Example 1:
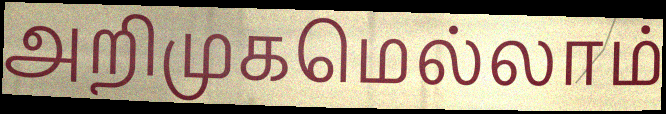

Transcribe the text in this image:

அறிமுகமெல்லாம்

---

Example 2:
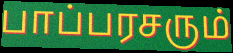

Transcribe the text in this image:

பாப்பரசரும்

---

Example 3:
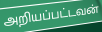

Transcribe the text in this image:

அறியப்பட்டவன்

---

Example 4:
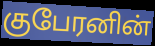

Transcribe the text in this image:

குபேரனின்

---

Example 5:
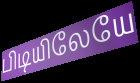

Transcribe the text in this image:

பிடியிலேயே